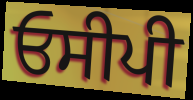
ਓਸੀਪੀ